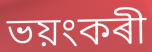
ভয়ংকৰী